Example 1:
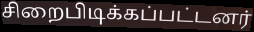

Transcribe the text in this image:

சிறைபிடிக்கப்பட்டனர்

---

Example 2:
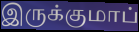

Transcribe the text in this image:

இருக்குமாப்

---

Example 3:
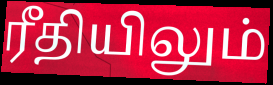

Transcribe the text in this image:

ரீதியிலும்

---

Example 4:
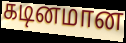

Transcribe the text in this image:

கடினமான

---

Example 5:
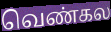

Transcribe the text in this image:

வெண்கல